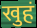
खुहं